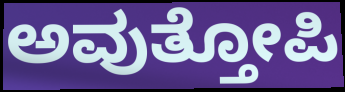
ಅವುತ್ತೋಪಿ